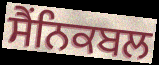
ਸੈੰਨਿਕਬਲ